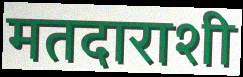
मतदाराशी